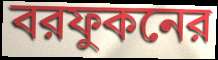
বরফুকনের